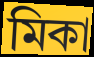
মিকা